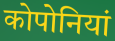
कोपोनियां